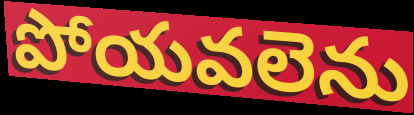
పోయవలెను